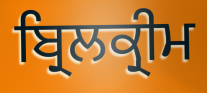
ਬ੍ਰਿਲਕ੍ਰੀਮ